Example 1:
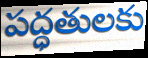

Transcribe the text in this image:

పద్ధతులకు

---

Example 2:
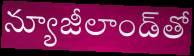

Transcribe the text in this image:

న్యూజీలాండ్‌తో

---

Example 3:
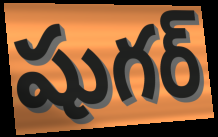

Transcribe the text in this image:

షుగర్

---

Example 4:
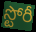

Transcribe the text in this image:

స్టోరీ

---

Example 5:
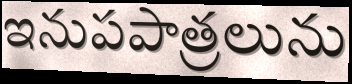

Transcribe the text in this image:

ఇనుపపాత్రలును